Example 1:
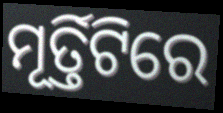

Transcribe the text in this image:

ମୂର୍ତ୍ତିଟିରେ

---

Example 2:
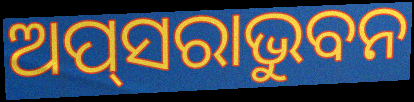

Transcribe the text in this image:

ଅପ୍‍ସରାଭୁବନ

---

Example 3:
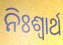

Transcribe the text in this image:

ନିଃଶ୍ୱାର୍ଥ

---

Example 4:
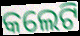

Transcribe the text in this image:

କଲେଟି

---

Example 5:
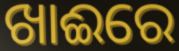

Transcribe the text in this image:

ଖାଈରେ